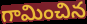
గామించిన